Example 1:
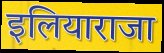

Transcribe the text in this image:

इलियाराजा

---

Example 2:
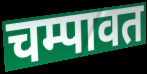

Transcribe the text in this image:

चम्पावत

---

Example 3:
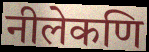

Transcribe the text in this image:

नीलेकणि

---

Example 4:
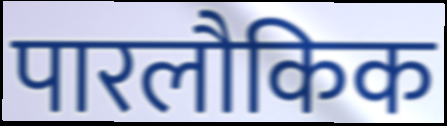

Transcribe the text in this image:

पारलौकिक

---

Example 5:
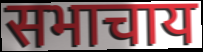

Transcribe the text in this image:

सभाचाय